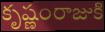
కృష్ణంరాజుకి